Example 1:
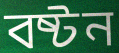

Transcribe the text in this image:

বষ্টন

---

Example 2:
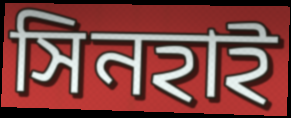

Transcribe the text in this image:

সিনহাই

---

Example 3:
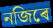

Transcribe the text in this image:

নজিৰে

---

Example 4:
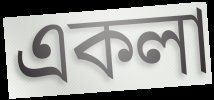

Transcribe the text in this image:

একলা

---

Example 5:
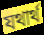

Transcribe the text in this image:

যথাৰ্থ